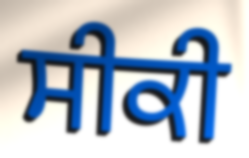
ਸੀਕੀ